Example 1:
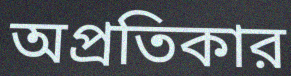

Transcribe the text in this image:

অপ্রতিকার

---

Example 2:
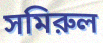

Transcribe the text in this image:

সমিরুল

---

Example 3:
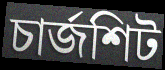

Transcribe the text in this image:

চার্জশিট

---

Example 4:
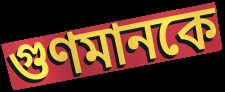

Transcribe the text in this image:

গুণমানকে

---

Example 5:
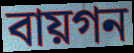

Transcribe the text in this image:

বায়গন